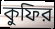
কুফির